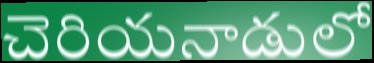
చెరియనాడులో